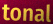
tonal